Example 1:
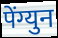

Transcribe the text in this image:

पेंग्युन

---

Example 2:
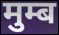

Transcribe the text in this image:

मुम्ब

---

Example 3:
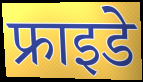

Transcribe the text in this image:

फ्राइडे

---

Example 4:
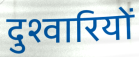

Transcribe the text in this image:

दुश्वारियों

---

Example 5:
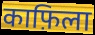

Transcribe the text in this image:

काफ़िला